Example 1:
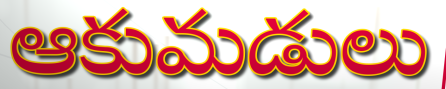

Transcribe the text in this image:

ఆకుమడులు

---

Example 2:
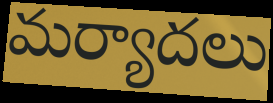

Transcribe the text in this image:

మర్యాదలు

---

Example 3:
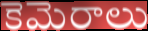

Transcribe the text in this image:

కెమెరాలు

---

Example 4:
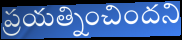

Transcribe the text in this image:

ప్రయత్నించిందని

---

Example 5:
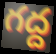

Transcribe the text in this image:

గద్ద